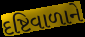
દષ્ટિવાળાને